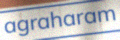
agraharam